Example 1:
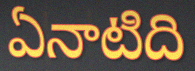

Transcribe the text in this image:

ఏనాటిది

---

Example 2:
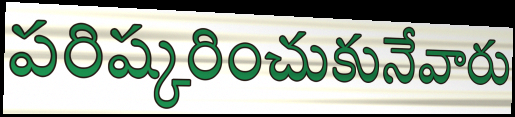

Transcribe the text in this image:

పరిష్కరించుకునేవారు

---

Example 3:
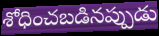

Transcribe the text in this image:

శోధించబడినప్పుడు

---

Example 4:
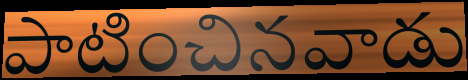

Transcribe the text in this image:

పాటించినవాడు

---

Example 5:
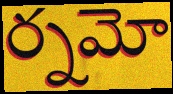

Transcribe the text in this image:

ర్నమో